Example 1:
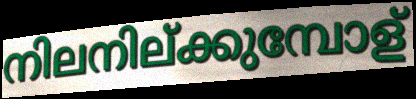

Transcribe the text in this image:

നിലനില്ക്കുമ്പോള്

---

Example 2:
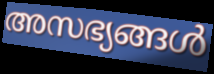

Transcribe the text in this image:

അസഭ്യങ്ങൾ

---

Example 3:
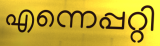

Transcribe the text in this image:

എന്നെപ്പറ്റി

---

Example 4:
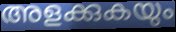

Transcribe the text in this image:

അളക്കുകയും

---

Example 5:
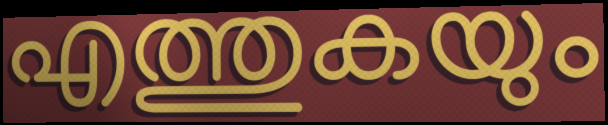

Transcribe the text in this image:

എത്തുകയും